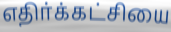
எதிர்க்கட்சியை